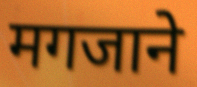
मगजाने